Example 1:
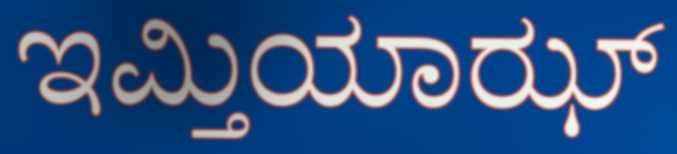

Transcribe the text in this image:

ಇಮ್ತಿಯಾಝ್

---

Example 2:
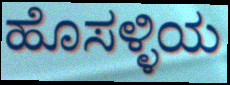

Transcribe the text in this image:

ಹೊಸಳ್ಳಿಯ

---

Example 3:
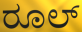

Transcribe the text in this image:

ರೂಲ್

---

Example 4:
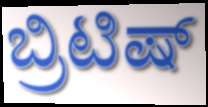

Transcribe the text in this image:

ಬ್ರಿಟಿಷ್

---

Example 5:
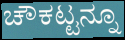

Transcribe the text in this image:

ಚೌಕಟ್ಟನ್ನೂ